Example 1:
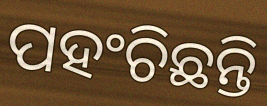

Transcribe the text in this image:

ପହଂଚିଛନ୍ତି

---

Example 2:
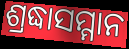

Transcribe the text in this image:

ଶ୍ରଦ୍ଧାସମ୍ମାନ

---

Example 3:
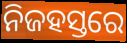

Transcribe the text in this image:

ନିଜହସ୍ତରେ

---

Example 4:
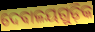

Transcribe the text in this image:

ଦେବାଳୟଗୁଡ଼ିକ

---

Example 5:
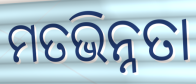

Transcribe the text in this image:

ମତଭିନ୍ନତା